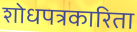
शोधपत्रकारिता